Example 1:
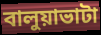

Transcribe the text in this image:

বালুয়াভাটা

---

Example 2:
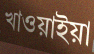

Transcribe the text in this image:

খাওয়াইয়া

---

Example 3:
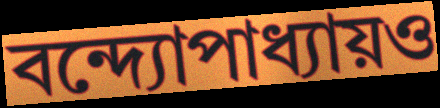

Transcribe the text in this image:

বন্দ্যোপাধ্যায়ও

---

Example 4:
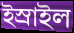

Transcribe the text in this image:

ইস্রাইল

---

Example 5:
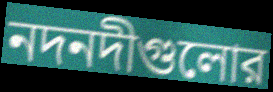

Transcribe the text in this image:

নদনদীগুলোর